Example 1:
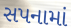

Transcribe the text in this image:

સપનામાં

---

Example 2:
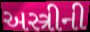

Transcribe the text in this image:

અસ્ત્રીની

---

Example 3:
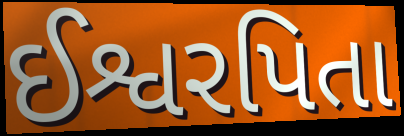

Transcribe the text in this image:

ઈશ્વરપિતા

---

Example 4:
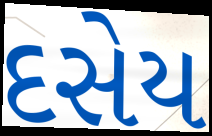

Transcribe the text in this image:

દસેય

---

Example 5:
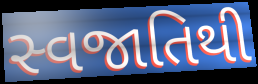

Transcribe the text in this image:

સ્વજાતિથી